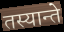
तस्यान्ते